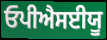
ਓਪੀਐਸਈਯੂ